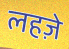
लहज़े